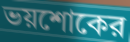
ভয়শোকের